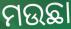
ମଉଛା